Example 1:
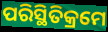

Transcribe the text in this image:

ପରିସ୍ଥିତିକ୍ରମେ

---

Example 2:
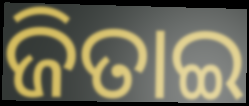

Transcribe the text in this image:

ଜିତାଇ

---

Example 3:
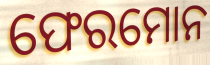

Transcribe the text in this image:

ଫେରମୋନ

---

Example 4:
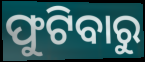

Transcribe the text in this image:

ଫୁଟିବାରୁ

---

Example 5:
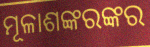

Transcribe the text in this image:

ମୂଳାଶଙ୍କରଙ୍କର